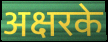
अक्षरके